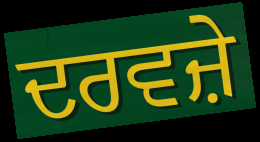
ਦਰਵਜ਼ੇ